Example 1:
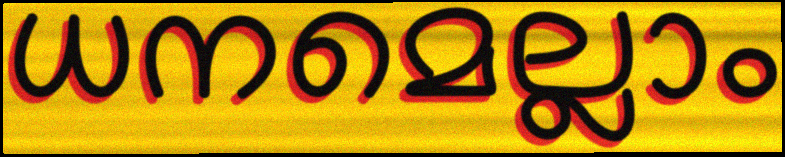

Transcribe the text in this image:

ധനമെല്ലാം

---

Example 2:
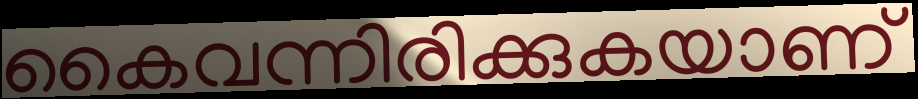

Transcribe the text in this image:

കൈവന്നിരിക്കുകയാണ്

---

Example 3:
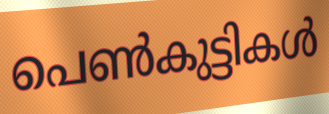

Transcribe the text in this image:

പെൺകുട്ടികൾ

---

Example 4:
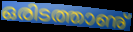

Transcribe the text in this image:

ഒരിടത്താണു്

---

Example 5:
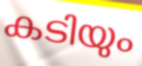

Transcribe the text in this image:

കടിയും